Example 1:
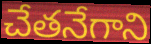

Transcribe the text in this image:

చేతనేగాని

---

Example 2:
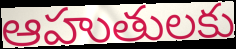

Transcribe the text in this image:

ఆహుతులకు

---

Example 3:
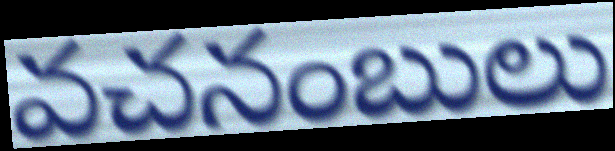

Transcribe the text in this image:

వచనంబులు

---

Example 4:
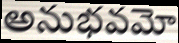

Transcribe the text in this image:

అనుభవమో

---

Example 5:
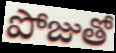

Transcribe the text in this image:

పోజుతో